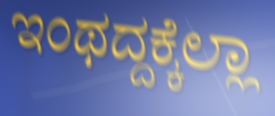
ಇಂಥದ್ದಕ್ಕೆಲ್ಲಾ